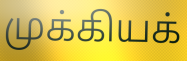
முக்கியக்